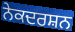
ਨੇਕਦਰਸ਼ਨ